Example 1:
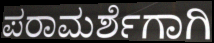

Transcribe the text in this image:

ಪರಾಮರ್ಶೆಗಾಗಿ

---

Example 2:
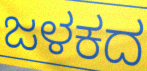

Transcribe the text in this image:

ಜಳಕದ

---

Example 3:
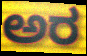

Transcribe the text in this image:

ಅರ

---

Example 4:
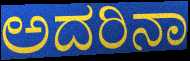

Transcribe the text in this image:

ಅದರಿನಾ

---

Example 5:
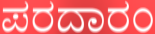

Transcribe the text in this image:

ಪರದಾರಂ